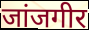
जांजगीर